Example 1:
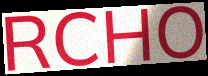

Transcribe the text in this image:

RCHO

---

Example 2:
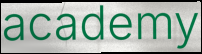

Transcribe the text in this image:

academy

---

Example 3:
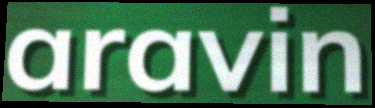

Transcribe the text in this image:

aravin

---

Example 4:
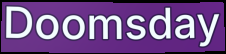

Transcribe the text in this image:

Doomsday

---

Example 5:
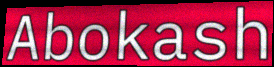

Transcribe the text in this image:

Abokash